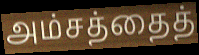
அம்சத்தைத்